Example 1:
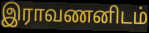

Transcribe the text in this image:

இராவணனிடம்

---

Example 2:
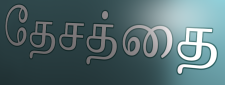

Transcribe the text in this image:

தேசத்தை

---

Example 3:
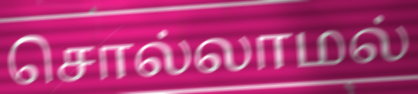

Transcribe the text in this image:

சொல்லாமல்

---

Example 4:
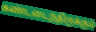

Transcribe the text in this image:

கண்டடைந்திருக்கும்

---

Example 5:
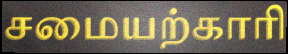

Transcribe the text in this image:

சமையற்காரி